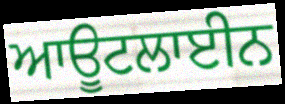
ਆਊਟਲਾਈਨ